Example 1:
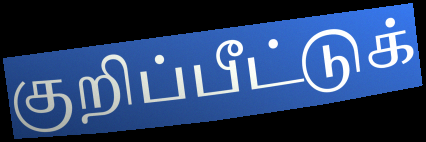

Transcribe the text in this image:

குறிப்பீட்டுக்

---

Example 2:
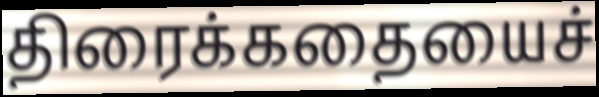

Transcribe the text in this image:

திரைக்கதையைச்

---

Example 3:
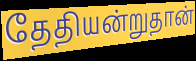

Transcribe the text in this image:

தேதியன்றுதான்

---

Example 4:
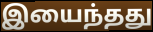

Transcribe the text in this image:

இயைந்தது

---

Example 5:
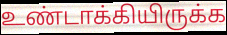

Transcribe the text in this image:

உண்டாக்கியிருக்க